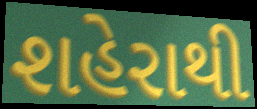
શહેરાથી